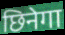
छिनेगा